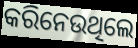
କରିନେଉଥିଲେ